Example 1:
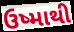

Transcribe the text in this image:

ઉષ્માથી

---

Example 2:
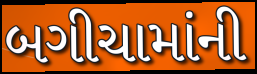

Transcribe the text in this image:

બગીચામાંની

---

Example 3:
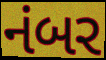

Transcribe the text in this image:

નંબર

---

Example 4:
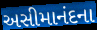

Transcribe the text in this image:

અસીમાનંદના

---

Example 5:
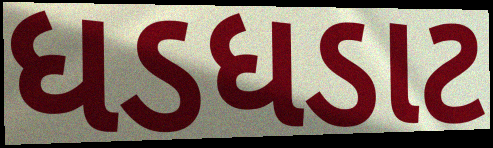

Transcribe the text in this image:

ધડધડાટ